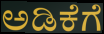
ಅಡಿಕೆಗೆ